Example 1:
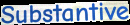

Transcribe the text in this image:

Substantive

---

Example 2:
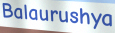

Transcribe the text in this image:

Balaurushya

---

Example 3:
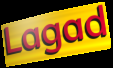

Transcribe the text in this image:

Lagad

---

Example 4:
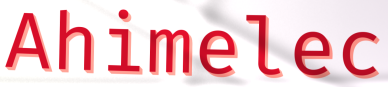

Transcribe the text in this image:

Ahimelec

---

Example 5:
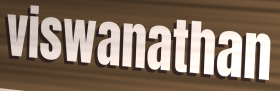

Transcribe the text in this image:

viswanathan